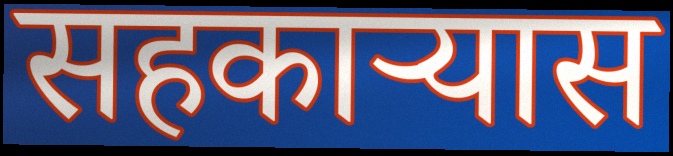
सहकार्‍यास